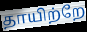
தாயிற்றே